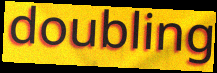
doubling